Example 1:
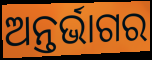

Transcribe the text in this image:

ଅନ୍ତର୍ଭାଗର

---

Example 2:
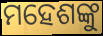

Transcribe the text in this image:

ମହେଶଙ୍କୁ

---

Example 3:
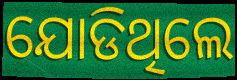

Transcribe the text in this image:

ଯୋଡିଥିଲେ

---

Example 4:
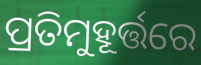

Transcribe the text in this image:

ପ୍ରତିମୁହୂର୍ତ୍ତରେ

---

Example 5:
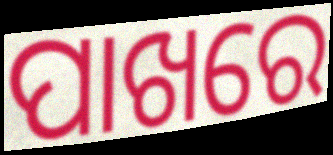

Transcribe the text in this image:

ପାଖରେ